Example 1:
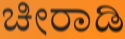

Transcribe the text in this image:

ಚೀರಾಡಿ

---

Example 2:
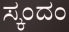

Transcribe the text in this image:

ಸ್ಕಂದಂ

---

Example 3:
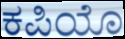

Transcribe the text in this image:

ಕಪಿಯೊ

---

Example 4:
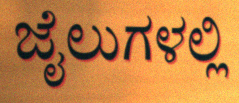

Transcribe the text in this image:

ಜೈಲುಗಳಲ್ಲಿ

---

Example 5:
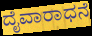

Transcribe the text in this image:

ದೈವಾರಾಧನೆ